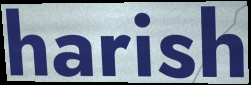
harish